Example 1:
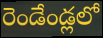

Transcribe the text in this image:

రెండేండ్లలో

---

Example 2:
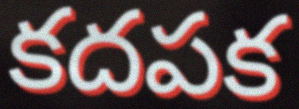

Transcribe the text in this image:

కదపక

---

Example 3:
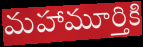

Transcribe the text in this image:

మహామూర్తికి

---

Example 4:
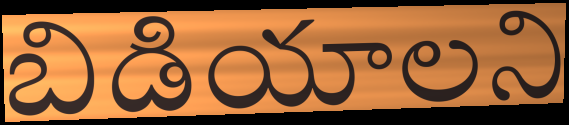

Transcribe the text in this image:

బిడియాలని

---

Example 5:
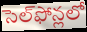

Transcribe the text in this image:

సెల్‌ఫోన్లలో